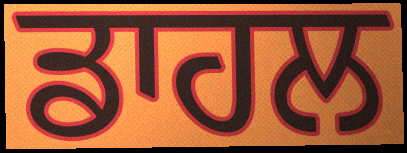
ਡਾਹਲ